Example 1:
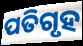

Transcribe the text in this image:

ପତିଗୃହ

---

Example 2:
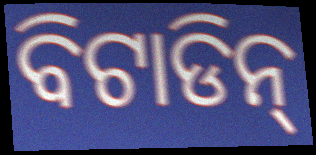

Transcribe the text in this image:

ବିଟାଡିନ୍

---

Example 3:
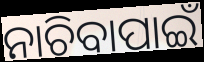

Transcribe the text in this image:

ନାଚିବାପାଇଁ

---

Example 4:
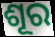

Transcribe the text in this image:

ଶୂର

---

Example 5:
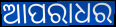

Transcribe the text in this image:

ଆପରାଧର